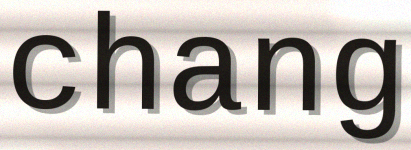
chang